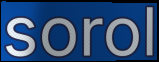
sorol